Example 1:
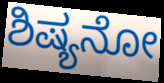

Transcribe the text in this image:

ಶಿಷ್ಯನೋ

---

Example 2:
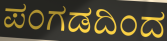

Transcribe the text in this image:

ಪಂಗಡದಿಂದ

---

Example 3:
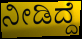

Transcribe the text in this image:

ನೀಡಿದ್ದೆ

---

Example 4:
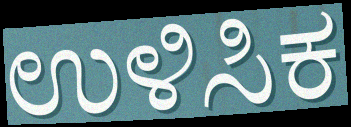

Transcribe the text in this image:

ಉಳಿಸಿಕ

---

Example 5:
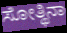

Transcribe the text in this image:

ಸೋತ್ಥಿನಾ